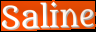
Saline